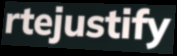
rtejustify